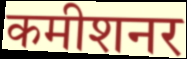
कमीशनर